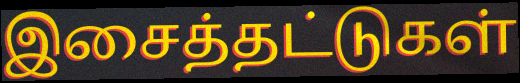
இசைத்தட்டுகள்